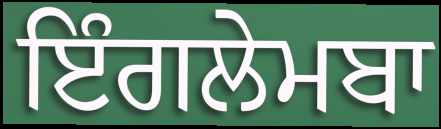
ਇੰਗਲੇਮਬਾ